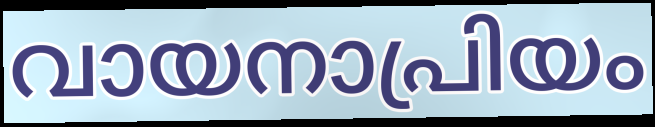
വായനാപ്രിയം